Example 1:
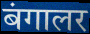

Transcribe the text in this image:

बंगालर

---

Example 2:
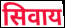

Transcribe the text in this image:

सिवाय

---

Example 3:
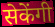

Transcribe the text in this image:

सेकेंगी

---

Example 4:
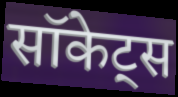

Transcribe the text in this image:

सॉकेट्स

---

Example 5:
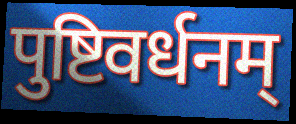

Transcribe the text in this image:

पुष्टिवर्धनम्